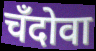
चँदोवा